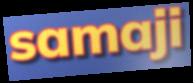
samaji